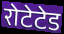
रोटेटेड